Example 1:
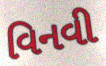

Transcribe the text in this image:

વિનવી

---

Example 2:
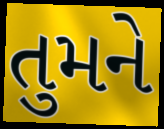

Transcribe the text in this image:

તુમને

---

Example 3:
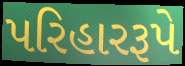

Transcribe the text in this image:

પરિહારરૂપે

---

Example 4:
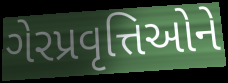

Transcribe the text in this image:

ગેરપ્રવૃત્તિઓને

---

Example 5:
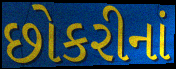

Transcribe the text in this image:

છોકરીનાં